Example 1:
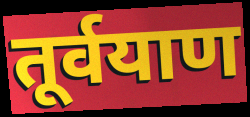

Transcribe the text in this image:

तूर्वयाण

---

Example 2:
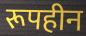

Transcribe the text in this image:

रूपहीन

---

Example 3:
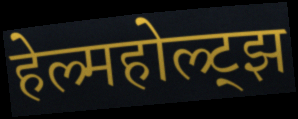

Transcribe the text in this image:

हेल्महोल्ट्झ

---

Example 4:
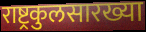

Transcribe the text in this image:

राष्ट्रकुलसारख्या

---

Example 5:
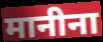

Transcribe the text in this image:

मानीना